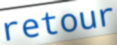
retour